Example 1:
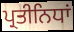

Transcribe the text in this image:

ਪ੍ਰਤੀਨਿਧਾਂ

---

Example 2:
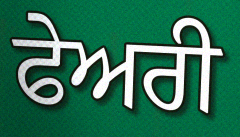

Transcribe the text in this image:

ਫੇਅਰੀ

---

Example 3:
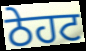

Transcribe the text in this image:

ਠੇਹਟ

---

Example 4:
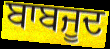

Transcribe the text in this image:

ਬਾਬਜੂਦ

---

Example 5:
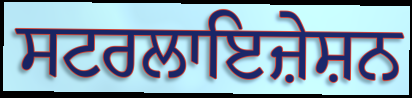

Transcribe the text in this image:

ਸਟਰਲਾਇਜ਼ੇਸ਼ਨ